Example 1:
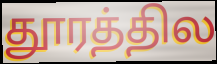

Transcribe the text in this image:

தூரத்தில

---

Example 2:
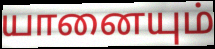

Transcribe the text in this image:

யானையும்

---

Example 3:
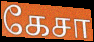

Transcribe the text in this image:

கேசா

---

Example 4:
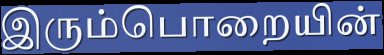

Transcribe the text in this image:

இரும்பொறையின்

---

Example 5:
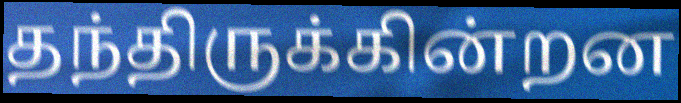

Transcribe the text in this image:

தந்திருக்கின்றன